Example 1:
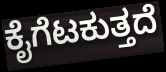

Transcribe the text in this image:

ಕೈಗೆಟಕುತ್ತದೆ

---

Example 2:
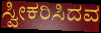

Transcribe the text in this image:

ಸ್ವೀಕರಿಸಿದವ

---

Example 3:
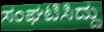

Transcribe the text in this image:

ಸಂಘಟಿಸಿದ್ದು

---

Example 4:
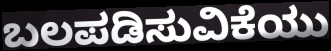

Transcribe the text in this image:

ಬಲಪಡಿಸುವಿಕೆಯು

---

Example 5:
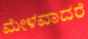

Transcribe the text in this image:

ಮೇಳವಾದರೆ